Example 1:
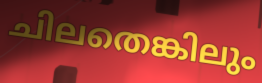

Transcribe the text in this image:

ചിലതെങ്കിലും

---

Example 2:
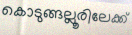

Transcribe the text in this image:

കൊടുങ്ങല്ലൂരിലേക്ക്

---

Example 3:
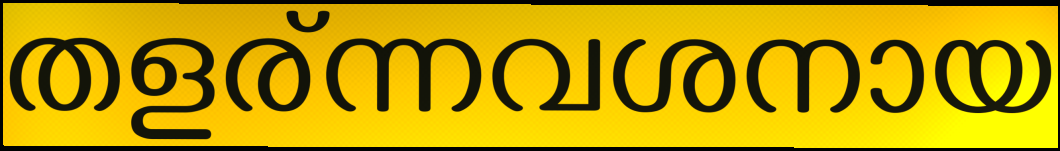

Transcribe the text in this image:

തളര്ന്നവശനായ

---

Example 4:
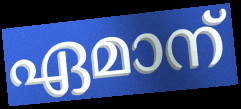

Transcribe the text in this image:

ഏമാന്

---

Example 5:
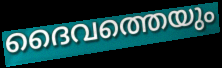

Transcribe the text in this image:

ദൈവത്തെയും